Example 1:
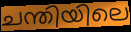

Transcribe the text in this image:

ചന്തിയിലെ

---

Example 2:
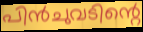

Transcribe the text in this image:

പിൻചുവടിന്റെ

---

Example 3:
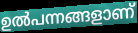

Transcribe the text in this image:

ഉൽപന്നങ്ങളാണ്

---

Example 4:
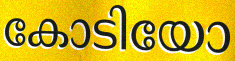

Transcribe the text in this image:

കോടിയോ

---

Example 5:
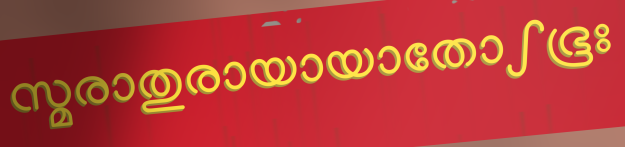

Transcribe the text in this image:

സ്മരാതുരായായാതോഽഭൂഃ